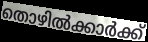
തൊഴിൽക്കാർക്ക്